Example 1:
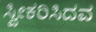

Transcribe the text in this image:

ಸ್ವೀಕರಿಸಿದವ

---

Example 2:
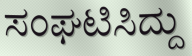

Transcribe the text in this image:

ಸಂಘಟಿಸಿದ್ದು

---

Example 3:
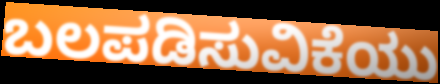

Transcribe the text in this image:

ಬಲಪಡಿಸುವಿಕೆಯು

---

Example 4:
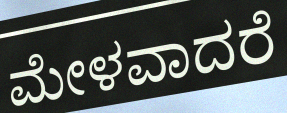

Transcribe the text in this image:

ಮೇಳವಾದರೆ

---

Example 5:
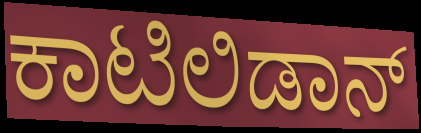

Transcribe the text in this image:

ಕಾಟಿಲಿಡಾನ್